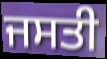
ਜਸਤੀ